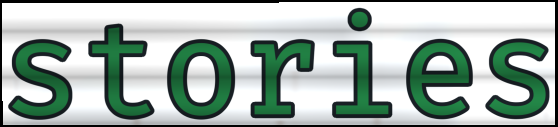
stories